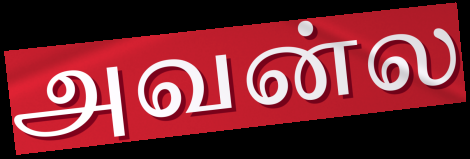
அவன்ல